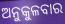
ଅନୁକୁଳବାର